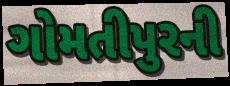
ગોમતીપુરની